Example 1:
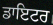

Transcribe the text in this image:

ਡਾਇਟਰ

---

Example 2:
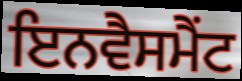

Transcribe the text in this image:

ਇਨਵੈਸਮੈਂਟ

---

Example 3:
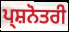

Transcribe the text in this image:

ਪ੍ਸ਼ਨੋਤਰੀ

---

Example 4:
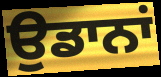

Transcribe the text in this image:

ਉਡਾਨਾਂ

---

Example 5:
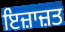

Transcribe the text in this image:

ਇਜ਼ਾਜ਼ਤ